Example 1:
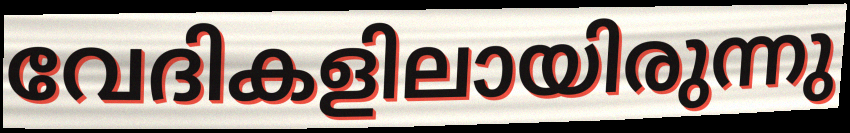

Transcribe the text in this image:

വേദികളിലായിരുന്നു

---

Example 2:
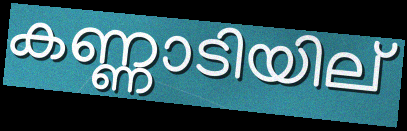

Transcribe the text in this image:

കണ്ണാടിയില്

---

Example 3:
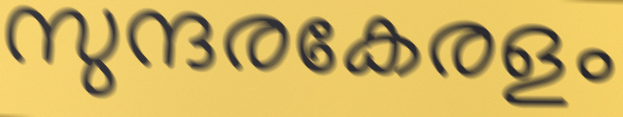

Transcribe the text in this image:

സുന്ദരകേരളം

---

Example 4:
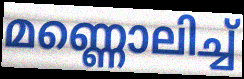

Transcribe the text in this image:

മണ്ണൊലിച്ച്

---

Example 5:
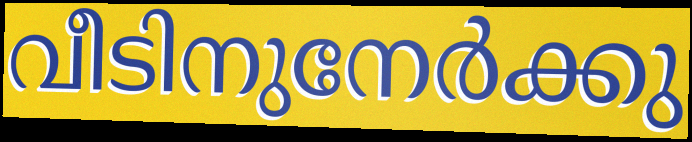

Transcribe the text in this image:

വീടിനുനേർക്കു